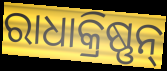
ରାଧାକ୍ରିଷ୍ଣନ୍